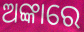
ଅଙ୍କାରେ